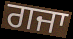
ਗਜਾ